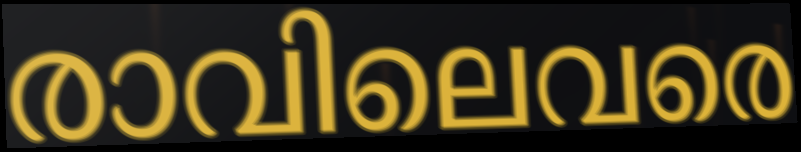
രാവിലെവരെ